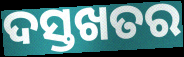
ଦସ୍ତଖତର